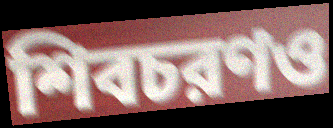
শিবচরণও